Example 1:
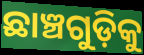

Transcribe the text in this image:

ଛାଞ୍ଚଗୁଡ଼ିକୁ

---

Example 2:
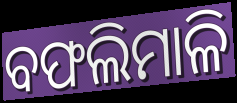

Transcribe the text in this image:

ବଫଲିମାଳି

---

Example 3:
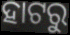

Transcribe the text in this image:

ହାଟରୁ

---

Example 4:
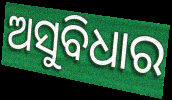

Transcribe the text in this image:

ଅସୁବିଧାର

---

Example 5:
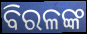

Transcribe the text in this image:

ବିରଳଙ୍କ